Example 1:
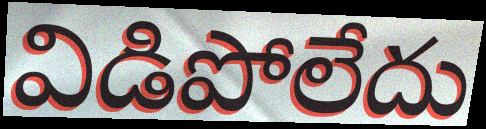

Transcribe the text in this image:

విడిపోలేదు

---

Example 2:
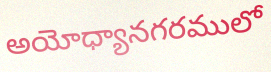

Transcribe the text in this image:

అయోధ్యానగరములో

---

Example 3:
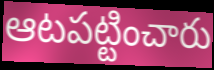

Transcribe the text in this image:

ఆటపట్టించారు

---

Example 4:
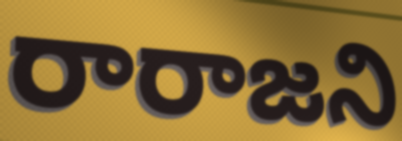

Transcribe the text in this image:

రారాజని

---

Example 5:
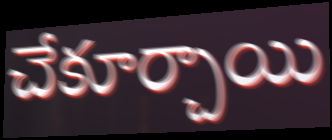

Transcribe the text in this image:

చేకూర్చాయి